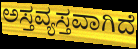
ಅಸ್ತವ್ಯಸ್ತವಾಗಿದೆ